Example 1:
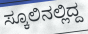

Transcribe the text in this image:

ಸ್ಕೂಲಿನಲ್ಲಿದ್ದ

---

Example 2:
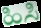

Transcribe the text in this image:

ಹಿಸಿ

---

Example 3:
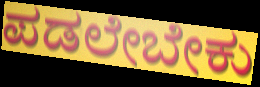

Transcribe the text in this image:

ಪಡಲೇಬೇಕು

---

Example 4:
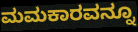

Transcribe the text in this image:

ಮಮಕಾರವನ್ನೂ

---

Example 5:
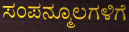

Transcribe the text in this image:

ಸಂಪನ್ಮೂಲಗಳಿಗೆ